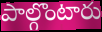
పాల్గొంటారు